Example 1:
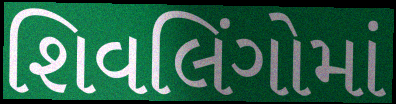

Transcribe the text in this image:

શિવલિંગોમાં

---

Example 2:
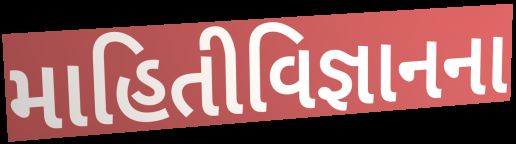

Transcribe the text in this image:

માહિતીવિજ્ઞાનના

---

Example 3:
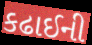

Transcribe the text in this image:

કઢાઈની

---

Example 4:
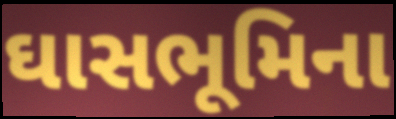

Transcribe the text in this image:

ઘાસભૂમિના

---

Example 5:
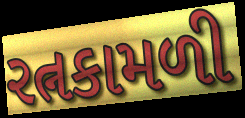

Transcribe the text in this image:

રત્નકામળી